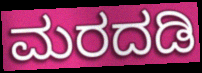
ಮರದಡಿ